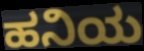
ಹನಿಯ